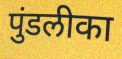
पुंडलीका